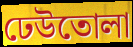
ঢেউতোলা